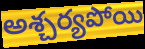
అశ్చర్యపోయి